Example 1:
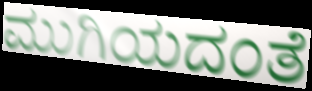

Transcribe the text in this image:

ಮುಗಿಯದಂತೆ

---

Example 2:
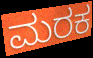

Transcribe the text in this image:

ಮರಕ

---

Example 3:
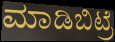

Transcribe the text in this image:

ಮಾಡಿಬಿಟ್ರೆ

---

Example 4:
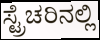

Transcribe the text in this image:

ಸ್ಟ್ರೆಚರಿನಲ್ಲಿ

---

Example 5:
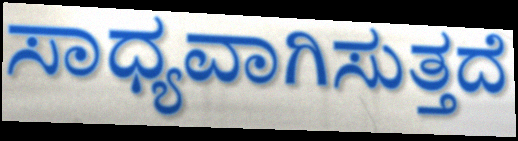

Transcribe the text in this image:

ಸಾಧ್ಯವಾಗಿಸುತ್ತದೆ